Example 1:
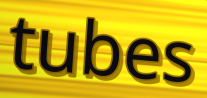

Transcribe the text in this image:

tubes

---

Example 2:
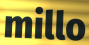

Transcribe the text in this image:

millo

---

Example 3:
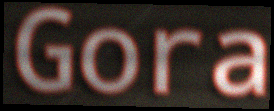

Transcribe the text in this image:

Gora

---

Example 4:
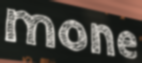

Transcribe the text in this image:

mone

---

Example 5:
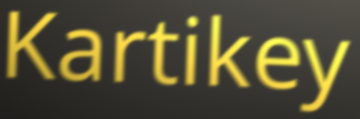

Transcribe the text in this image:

Kartikey